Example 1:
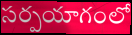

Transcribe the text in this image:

సర్పయాగంలో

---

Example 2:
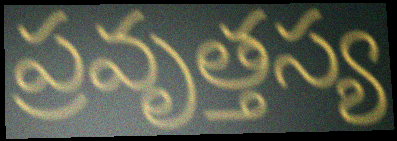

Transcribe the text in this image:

ప్రవృత్తస్య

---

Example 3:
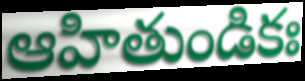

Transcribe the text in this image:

ఆహితుండికః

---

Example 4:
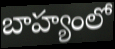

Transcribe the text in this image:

బాహ్యంలో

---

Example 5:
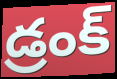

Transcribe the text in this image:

డ్రంక్